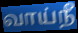
வாய்நீ